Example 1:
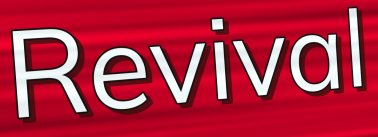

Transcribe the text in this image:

Revival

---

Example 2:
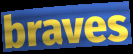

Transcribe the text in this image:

braves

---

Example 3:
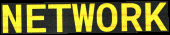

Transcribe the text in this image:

NETWORK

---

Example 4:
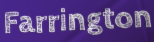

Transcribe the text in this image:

Farrington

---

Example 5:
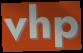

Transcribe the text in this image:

vhp